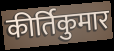
कीर्तिकुमार